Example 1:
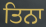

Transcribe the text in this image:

ਤਿਨਾ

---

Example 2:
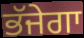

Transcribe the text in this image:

ਭੱਜੇਗਾ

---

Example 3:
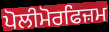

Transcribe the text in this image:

ਪੋਲੀਮੋਰਫਿਜ਼ਮ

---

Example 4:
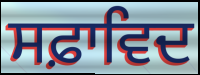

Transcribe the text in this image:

ਸਫ਼ਾਵਿਦ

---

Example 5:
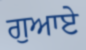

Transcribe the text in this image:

ਗੁਆਏ